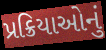
પ્રક્રિયાઓનું